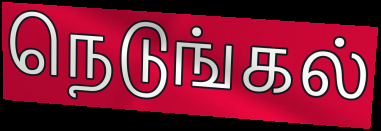
நெடுங்கல்